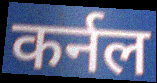
कर्नल